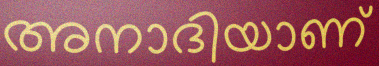
അനാദിയാണ്